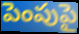
పెంపుపై